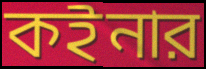
কইনার